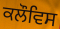
ਕਲੌਵਿਸ